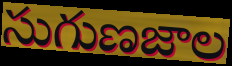
సుగుణజాల